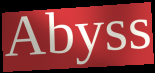
Abyss